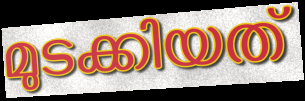
മുടക്കിയത്